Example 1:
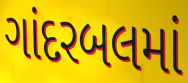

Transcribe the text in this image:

ગાંદરબલમાં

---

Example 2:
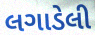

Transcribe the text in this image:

લગાડેલી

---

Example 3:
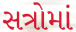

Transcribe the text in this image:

સત્રોમાં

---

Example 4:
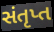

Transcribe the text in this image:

સંતૃપ્ત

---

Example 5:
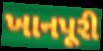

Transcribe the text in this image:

ખાનપૂરી